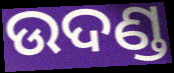
ଉଦଣ୍ଡ